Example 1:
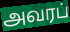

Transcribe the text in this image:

அவரப்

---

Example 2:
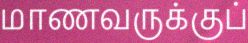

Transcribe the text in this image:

மாணவருக்குப்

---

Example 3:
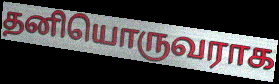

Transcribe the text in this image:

தனியொருவராக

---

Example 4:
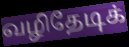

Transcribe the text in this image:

வழிதேடிக்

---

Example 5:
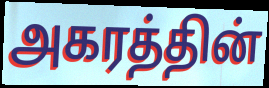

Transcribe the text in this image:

அகரத்தின்